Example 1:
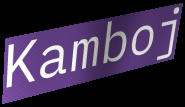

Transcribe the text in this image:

Kamboj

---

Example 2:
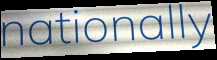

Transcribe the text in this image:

nationally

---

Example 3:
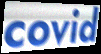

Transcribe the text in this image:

covid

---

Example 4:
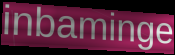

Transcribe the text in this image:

inbaminge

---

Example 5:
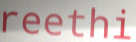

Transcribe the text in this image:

reethi